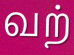
வற்